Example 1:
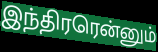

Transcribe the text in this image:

இந்திரரென்னும்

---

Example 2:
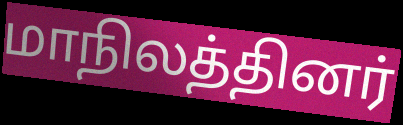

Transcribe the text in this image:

மாநிலத்தினர்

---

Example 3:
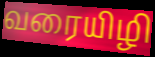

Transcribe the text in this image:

வரையிழி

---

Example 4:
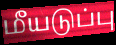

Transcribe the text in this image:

மீயடுப்பு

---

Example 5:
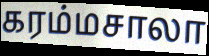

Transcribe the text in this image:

கரம்மசாலா